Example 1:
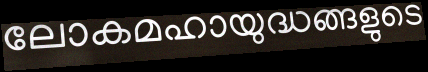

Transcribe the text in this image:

ലോകമഹായുദ്ധങ്ങളുടെ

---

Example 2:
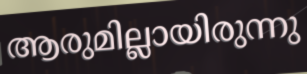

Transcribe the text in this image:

ആരുമില്ലായിരുന്നു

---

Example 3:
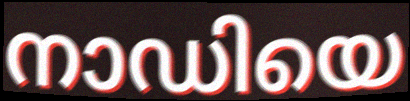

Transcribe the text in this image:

നാഡിയെ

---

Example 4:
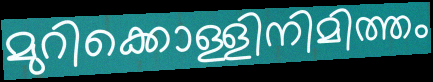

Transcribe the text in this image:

മുറിക്കൊള്ളിനിമിത്തം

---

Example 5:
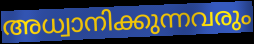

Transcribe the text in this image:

അധ്വാനിക്കുന്നവരും